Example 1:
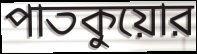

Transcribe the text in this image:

পাতকুয়োর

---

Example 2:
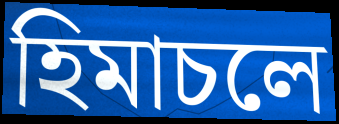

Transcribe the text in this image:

হিমাচলে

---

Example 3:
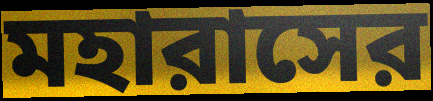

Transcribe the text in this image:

মহারাসের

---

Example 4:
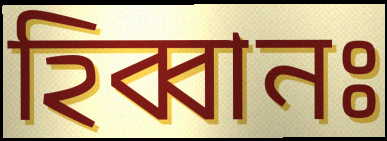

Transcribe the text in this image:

হিব্বানঃ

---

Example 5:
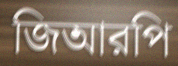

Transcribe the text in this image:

জিআরপি